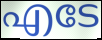
എടേ